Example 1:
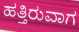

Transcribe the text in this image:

ಹತ್ತಿರುವಾಗ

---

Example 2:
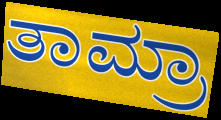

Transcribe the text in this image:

ತಾಮ್ರಾ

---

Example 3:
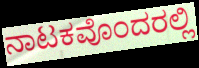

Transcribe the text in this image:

ನಾಟಕವೊಂದರಲ್ಲಿ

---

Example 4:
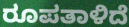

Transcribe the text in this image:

ರೂಪತಾಳಿದೆ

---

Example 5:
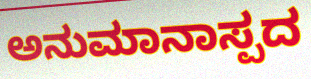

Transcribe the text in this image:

ಅನುಮಾನಾಸ್ಪದ